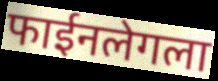
फाईनलेगला